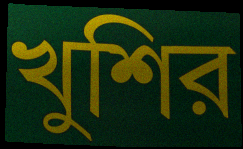
খুশির